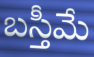
బస్తీమే